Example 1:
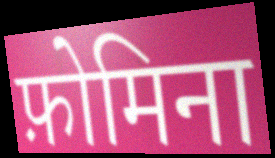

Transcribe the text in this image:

फ़ोमिना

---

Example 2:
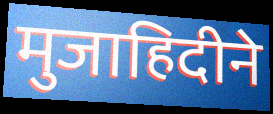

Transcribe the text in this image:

मुजाहिदीने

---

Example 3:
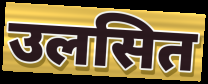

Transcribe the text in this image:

उलसित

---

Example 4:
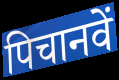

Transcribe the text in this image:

पिचानवें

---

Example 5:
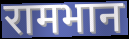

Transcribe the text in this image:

रामभान